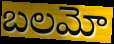
బలమో